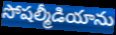
సోషల్మీడియాను